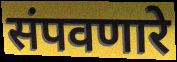
संपवणारे